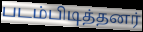
படம்பிடித்தனர்